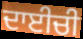
ਦਾਈਚੀ